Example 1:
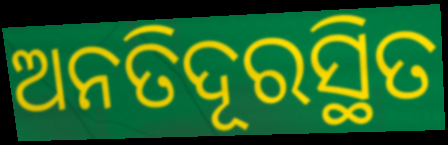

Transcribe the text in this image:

ଅନତିଦୂରସ୍ଥିତ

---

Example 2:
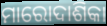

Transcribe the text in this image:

ମାରୋଦାଶିକା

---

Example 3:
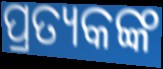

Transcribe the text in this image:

ପ୍ରତ୍ୟକଙ୍କ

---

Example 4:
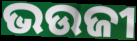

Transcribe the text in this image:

ଭଉଜୀ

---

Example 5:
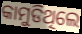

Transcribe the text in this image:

କାମୁଡିଥିଲେ